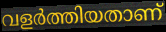
വളർത്തിയതാണ്